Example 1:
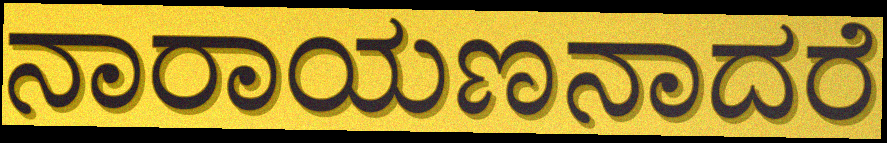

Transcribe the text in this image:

ನಾರಾಯಣನಾದರೆ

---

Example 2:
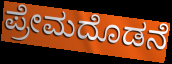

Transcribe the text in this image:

ಪ್ರೇಮದೊಡನೆ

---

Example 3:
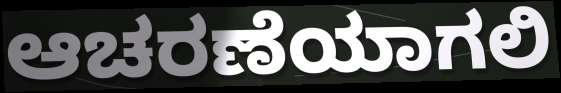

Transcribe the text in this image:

ಆಚರಣೆಯಾಗಲಿ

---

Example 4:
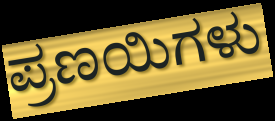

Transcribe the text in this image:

ಪ್ರಣಯಿಗಳು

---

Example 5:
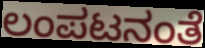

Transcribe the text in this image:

ಲಂಪಟನಂತೆ